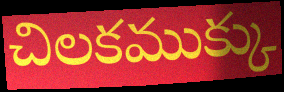
చిలకముక్కు